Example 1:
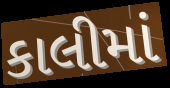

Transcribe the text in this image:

કાલીમાં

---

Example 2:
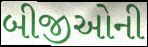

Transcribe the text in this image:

બીજીઓની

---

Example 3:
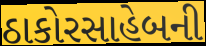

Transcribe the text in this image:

ઠાકોરસાહેબની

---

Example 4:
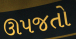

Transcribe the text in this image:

ઊપજતો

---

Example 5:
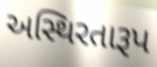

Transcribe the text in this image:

અસ્થિરતારૂપ